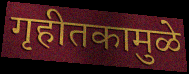
गृहीतकामुळे